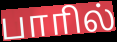
பாரில்